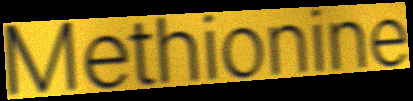
Methionine